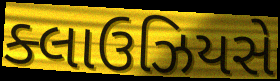
ક્લાઉઝિયસે